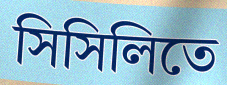
সিসিলিতে